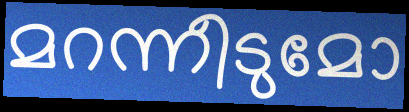
മറന്നീടുമോ